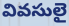
వివసులై